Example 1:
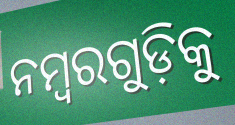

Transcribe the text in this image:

ନମ୍ବରଗୁଡ଼ିକୁ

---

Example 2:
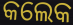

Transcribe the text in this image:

କଲେକ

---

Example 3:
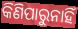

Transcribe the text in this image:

କିଣିପାରୁନାହିଁ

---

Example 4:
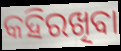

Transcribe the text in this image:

କହିରଖିବା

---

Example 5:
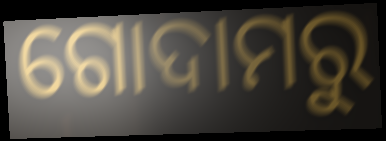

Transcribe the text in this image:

ଗୋଦାମରୁ